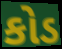
કોડ